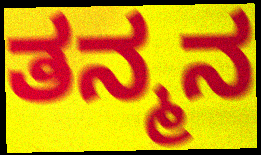
ತನ್ಮನ